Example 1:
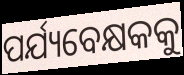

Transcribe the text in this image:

ପର୍ଯ୍ୟବେକ୍ଷକକୁ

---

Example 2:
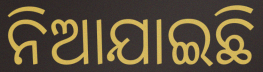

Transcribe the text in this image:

ନିଆଯାଇଛି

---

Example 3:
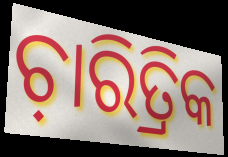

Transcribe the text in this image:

ଚ଼ାରିତ୍ରିକ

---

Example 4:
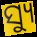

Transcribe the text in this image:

ସ୍ୟୁ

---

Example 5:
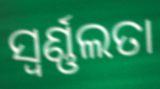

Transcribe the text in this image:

ସ୍ଵର୍ଣ୍ଣଲତା